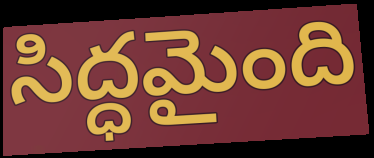
సిద్ధమైంది